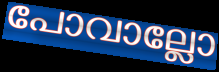
പോവാല്ലോ